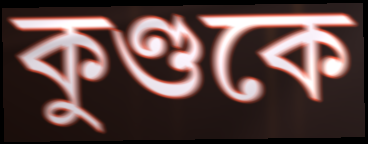
কুণ্ডকে